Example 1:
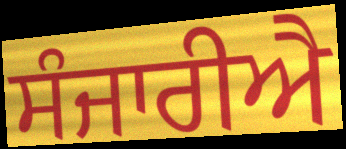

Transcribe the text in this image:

ਸੰਜਾਰੀਐ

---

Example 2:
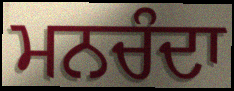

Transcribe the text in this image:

ਮਨਚੰਦਾ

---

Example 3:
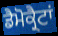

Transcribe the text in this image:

ਡੈਮੋਕ੍ਰੈਟਾਂ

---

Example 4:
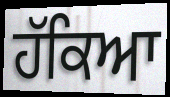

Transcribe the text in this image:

ਹੱਕਿਆ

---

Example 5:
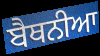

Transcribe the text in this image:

ਬੈਥਨੀਆ